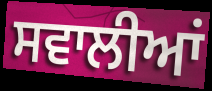
ਸਵਾਲੀਆਂ